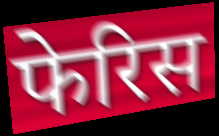
फेरिस